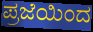
ಪ್ರಜೆಯಿಂದ